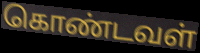
கொண்டவள்